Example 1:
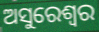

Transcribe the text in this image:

ଅସୁରେଶ୍ୱର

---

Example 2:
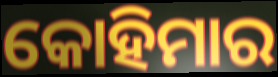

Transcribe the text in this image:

କୋହିମାର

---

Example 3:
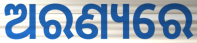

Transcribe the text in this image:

ଅରଣ୍ୟରେ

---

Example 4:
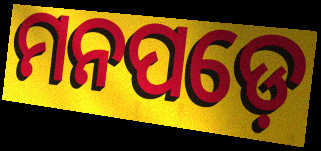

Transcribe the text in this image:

ମନପଡ଼େ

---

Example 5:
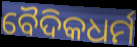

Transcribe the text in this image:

ବୈଦିକଧର୍ମ